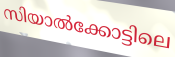
സിയാൽക്കോട്ടിലെ